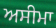
ਅਸੀਮਾ